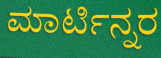
ಮಾರ್ಟಿನ್ನರ